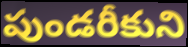
పుండరీకుని